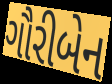
ગૌરીબેન